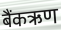
बैंकऋण